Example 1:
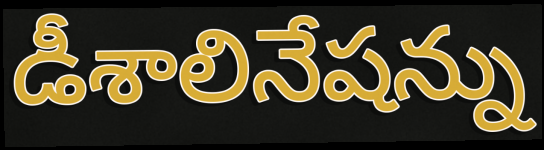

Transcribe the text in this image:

డీశాలినేషన్ను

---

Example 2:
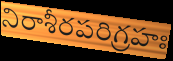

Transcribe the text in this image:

నిరాశీరపరిగ్రహః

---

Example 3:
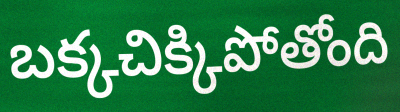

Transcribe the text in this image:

బక్కచిక్కిపోతోంది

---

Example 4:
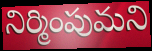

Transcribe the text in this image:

నిర్మింపుమని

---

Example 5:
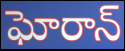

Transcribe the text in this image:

ఘోరాన్